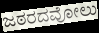
ಜಠರದವೋಲು